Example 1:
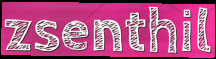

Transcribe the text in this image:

zsenthil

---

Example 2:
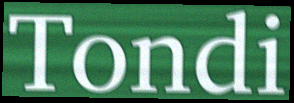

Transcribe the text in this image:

Tondi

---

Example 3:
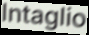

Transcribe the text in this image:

Intaglio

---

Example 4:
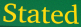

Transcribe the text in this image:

Stated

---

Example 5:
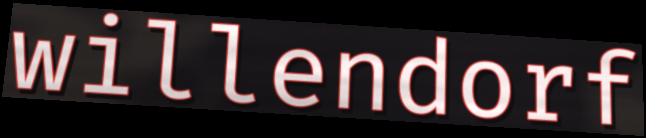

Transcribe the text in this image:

willendorf